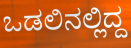
ಒಡಲಿನಲ್ಲಿದ್ದ